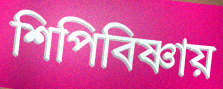
শিপিবিষ্ণায়